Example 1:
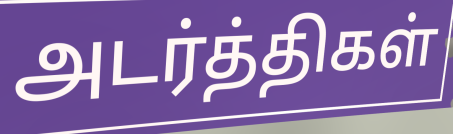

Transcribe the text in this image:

அடர்த்திகள்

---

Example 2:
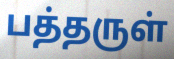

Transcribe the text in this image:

பத்தருள்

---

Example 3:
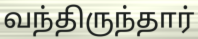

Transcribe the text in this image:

வந்திருந்தார்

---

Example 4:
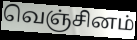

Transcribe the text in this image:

வெஞ்சினம்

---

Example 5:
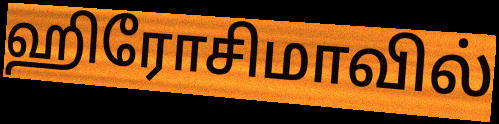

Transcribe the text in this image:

ஹிரோசிமாவில்